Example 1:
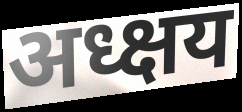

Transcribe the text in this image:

अध्क्षय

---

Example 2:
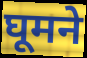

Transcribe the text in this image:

घूमने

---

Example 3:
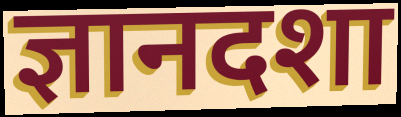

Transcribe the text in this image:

ज्ञानदशा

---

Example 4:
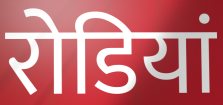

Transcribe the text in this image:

रोडियां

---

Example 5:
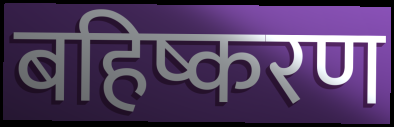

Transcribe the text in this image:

बहिष्करण